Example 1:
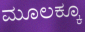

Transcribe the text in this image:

ಮೂಲಕ್ಕೂ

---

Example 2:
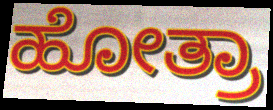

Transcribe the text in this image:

ಹೋತ್ರಾ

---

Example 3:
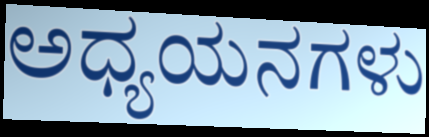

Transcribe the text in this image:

ಅಧ್ಯಯನಗಳು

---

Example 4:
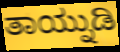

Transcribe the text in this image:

ತಾಯ್ನುಡಿ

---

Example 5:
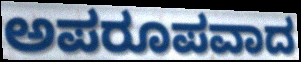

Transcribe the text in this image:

ಅಪರೂಪವಾದ